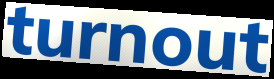
turnout